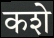
कशे